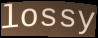
lossy